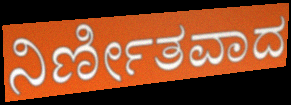
ನಿರ್ಣೀತವಾದ